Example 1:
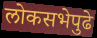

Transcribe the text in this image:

लोकसभेपुढे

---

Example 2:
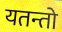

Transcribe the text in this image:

यतन्तो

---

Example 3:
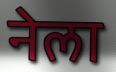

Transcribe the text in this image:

नेला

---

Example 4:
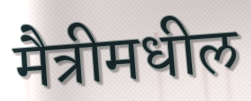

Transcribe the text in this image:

मैत्रीमधील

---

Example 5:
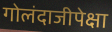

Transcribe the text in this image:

गोलंदाजीपेक्षा